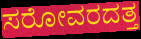
ಸರೋವರದತ್ತ